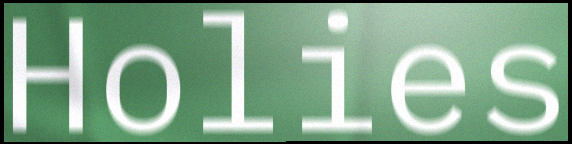
Holies